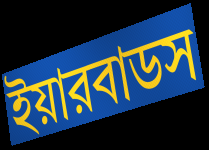
ইয়ারবাডস